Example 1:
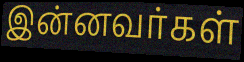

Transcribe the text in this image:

இன்னவர்கள்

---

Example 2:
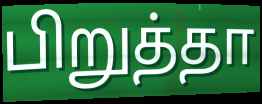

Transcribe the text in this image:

பிறுத்தா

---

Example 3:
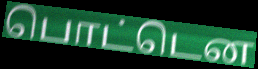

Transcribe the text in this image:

பொட்டென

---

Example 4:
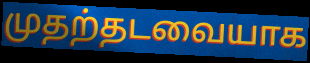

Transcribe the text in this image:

முதற்தடவையாக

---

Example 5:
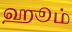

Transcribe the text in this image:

ஹூம்